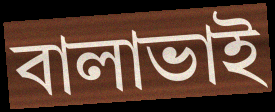
বালাভাই